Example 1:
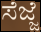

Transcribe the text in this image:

ಸೆಜ್ಜೆ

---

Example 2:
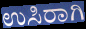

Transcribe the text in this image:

ಉಸಿರಾಗಿ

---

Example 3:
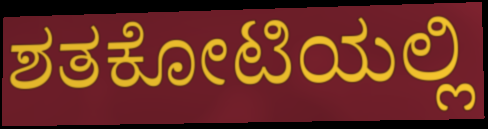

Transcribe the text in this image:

ಶತಕೋಟಿಯಲ್ಲಿ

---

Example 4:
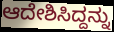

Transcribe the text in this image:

ಆದೇಶಿಸಿದ್ದನ್ನು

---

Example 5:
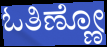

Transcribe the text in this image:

ಓತಿಣ್ಣೋ